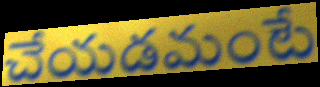
చేయడమంటే